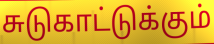
சுடுகாட்டுக்கும்